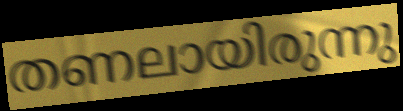
തണലായിരുന്നു